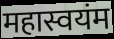
महास्वयंम